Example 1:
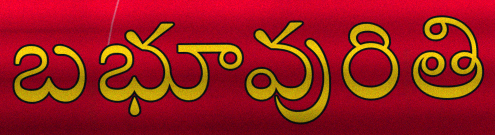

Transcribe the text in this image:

బభూవురితి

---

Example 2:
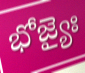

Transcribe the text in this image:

భోజ్యైః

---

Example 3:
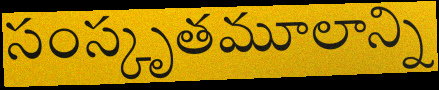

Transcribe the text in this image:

సంస్కృతమూలాన్ని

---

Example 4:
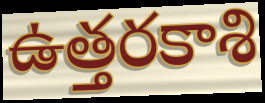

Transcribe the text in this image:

ఉత్తరకాశి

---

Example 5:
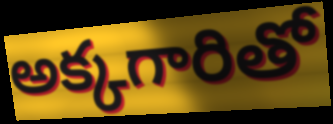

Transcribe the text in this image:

అక్కగారితో